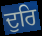
ਦੁਰਿ